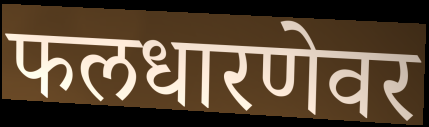
फलधारणेवर